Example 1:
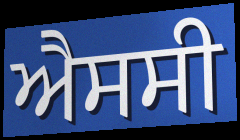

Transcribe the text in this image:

ਐਸਸੀ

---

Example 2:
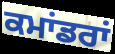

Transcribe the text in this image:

ਕਮਾਂਡਰਾਂ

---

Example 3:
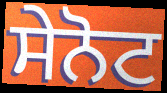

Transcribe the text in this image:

ਸੇਨੋਟ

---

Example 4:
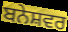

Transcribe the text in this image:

ਬਨੇਸ਼ਵਰ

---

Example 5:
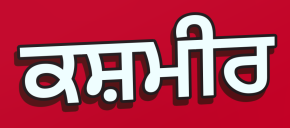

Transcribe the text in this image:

ਕਸ਼ਮੀਰ